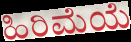
ಹಿರಿಮೆಯೆ